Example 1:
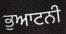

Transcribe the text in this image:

ਭੁਆਟਨੀ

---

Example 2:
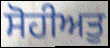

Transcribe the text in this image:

ਸੋਹੀਅਤੁ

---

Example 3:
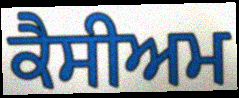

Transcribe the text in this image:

ਕੈਸੀਅਮ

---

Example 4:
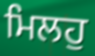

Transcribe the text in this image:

ਮਿਲਹੁ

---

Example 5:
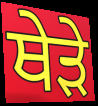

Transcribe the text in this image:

ਥੇੜੇ